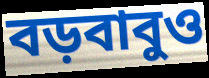
বড়বাবুও